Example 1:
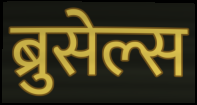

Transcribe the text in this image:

ब्रुसेल्स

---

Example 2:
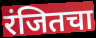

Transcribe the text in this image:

रंजितचा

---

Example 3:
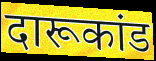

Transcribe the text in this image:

दारूकांड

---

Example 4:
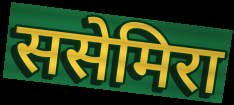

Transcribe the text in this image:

ससेमिरा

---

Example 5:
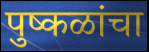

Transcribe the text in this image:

पुष्कळांचा